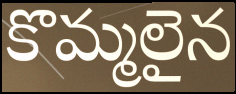
కొమ్మలైన